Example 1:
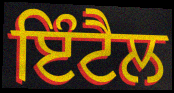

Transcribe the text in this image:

ਇੰਟੈਲ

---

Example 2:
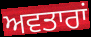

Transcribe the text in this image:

ਅਵਤਾਰਾਂ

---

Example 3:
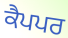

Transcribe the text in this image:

ਕੈਪਪਰ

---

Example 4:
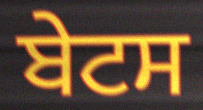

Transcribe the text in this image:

ਬੇਟਸ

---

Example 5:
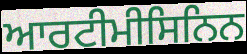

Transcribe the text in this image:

ਆਰਟੀਮੀਸਿਨਿਨ